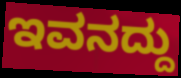
ಇವನದ್ದು